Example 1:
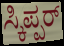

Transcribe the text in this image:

ಸ್ಕಿಪ್ಪರ್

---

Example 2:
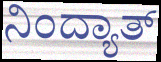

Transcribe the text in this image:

ನಿಂದ್ಯಾತ್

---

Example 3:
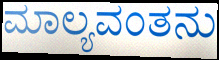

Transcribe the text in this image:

ಮಾಲ್ಯವಂತನು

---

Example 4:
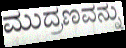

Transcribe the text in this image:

ಮುದ್ರಣವನ್ನು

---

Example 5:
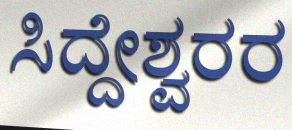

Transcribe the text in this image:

ಸಿದ್ದೇಶ್ವರರ